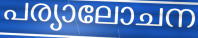
പര്യാലോചന